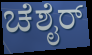
ಚೆಶೈರ್